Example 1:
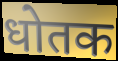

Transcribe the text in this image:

धोतक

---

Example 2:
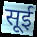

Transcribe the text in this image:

सूई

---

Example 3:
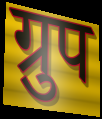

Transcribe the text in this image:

ग्रुप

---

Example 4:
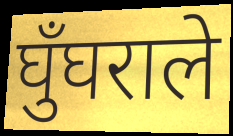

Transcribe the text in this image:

घुँघराले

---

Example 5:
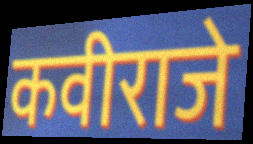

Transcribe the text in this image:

कवीराजे